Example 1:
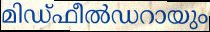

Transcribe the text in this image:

മിഡ്ഫീൽഡറായും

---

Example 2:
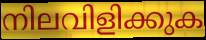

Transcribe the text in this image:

നിലവിളിക്കുക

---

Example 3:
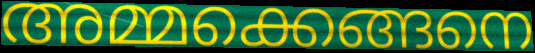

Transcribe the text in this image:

അമ്മക്കെങ്ങനെ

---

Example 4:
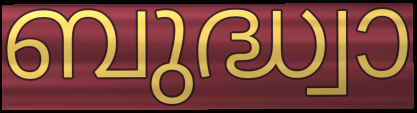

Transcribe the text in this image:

ബുദ്ധ്വാ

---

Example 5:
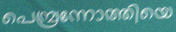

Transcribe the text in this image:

പെമ്പ്രന്നോത്തിയെ